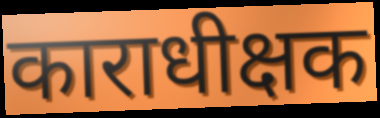
काराधीक्षक